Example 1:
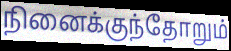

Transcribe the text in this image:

நினைக்குந்தோறும்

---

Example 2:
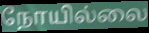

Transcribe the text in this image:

நோயில்லை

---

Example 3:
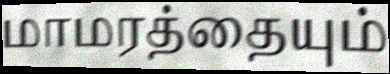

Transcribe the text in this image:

மாமரத்தையும்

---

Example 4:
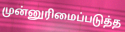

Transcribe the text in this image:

முன்னுரிமைப்படுத்த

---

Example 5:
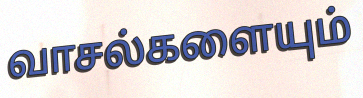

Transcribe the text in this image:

வாசல்களையும்